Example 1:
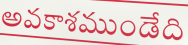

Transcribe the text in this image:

అవకాశముండేది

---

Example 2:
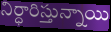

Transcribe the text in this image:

నిర్ధారిస్తున్నాయి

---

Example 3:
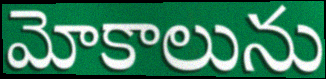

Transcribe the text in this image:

మోకాలును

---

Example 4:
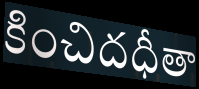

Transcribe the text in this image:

కించిదధీతా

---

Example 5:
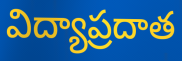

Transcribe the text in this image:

విద్యాప్రదాత